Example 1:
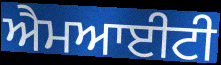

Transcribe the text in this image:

ਐਮਆਈਟੀ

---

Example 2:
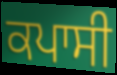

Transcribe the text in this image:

ਕਪਾਸੀ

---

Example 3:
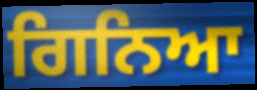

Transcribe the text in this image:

ਗਿਨਿਆ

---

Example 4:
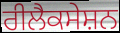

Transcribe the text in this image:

ਰੀਲੈਕਸੇਸ਼ਨ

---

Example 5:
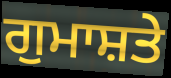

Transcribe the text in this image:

ਗੁਮਾਸ਼ਤੇ